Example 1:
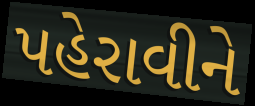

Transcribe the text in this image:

પહેરાવીને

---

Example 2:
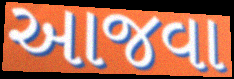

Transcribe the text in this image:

આજવા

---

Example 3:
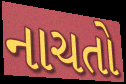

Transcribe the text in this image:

નાચતો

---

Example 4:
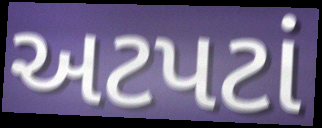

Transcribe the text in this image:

અટપટાં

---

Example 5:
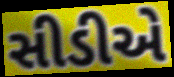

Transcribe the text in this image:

સીડીએ